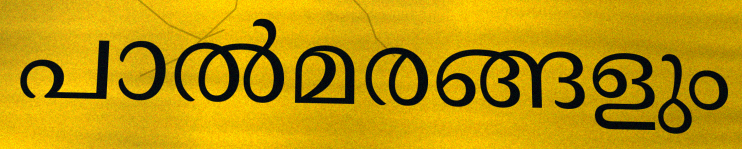
പാൽമരങ്ങളും